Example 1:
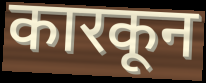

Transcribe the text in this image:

कारकून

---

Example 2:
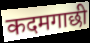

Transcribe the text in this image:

कदमगाछी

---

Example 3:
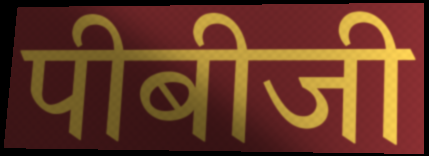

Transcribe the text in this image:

पीबीजी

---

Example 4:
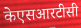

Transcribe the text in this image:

केएसआरटीसी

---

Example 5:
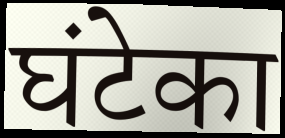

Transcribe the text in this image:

घंटेका